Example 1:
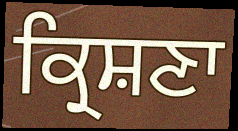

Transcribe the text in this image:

ਕ੍ਰਿਸ਼ਣਾ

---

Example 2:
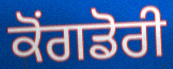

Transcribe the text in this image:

ਕੋਂਗਡੋਰੀ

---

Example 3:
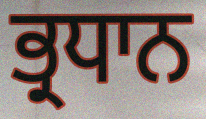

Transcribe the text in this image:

ਭ੍ਰਧਾਨ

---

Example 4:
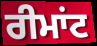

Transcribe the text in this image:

ਰੀਮਾਂਟ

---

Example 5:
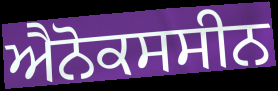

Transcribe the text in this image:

ਐਨੋਕਸਸੀਨ